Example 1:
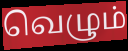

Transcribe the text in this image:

வெழும்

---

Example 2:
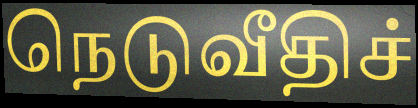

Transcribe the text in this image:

நெடுவீதிச்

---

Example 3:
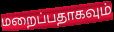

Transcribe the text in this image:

மறைப்பதாகவும்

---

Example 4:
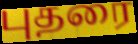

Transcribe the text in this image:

புதரை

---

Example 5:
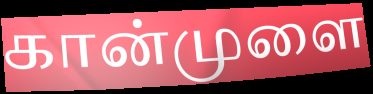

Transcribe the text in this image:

கான்முளை